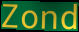
Zond